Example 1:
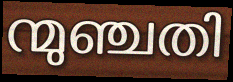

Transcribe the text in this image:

ന്മുഞ്ചതി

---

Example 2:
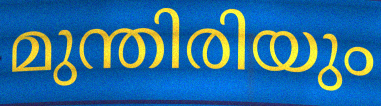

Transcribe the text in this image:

മുന്തിരിയും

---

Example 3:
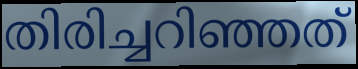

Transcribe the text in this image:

തിരിച്ചറിഞ്ഞത്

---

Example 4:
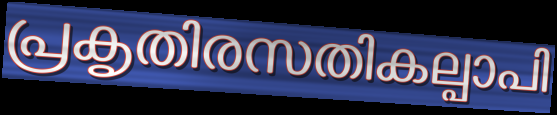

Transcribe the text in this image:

പ്രകൃതിരസതികല്പാപി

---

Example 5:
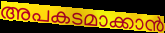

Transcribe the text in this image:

അപകടമാക്കാൻ